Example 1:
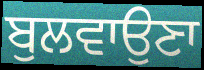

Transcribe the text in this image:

ਬੁਲਵਾਉਣਾ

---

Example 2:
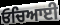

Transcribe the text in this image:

ਓਚਿਆਈ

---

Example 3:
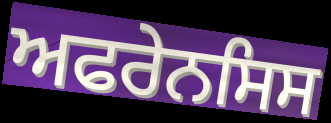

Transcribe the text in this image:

ਅਫਰੇਨਸਿਸ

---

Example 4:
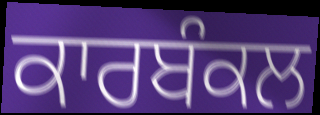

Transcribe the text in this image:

ਕਾਰਬੰਕਲ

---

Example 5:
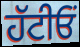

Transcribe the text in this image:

ਹੱਟੀਓਂ